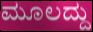
ಮೂಲದ್ದು